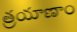
త్రయాణాం